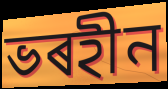
ভৰহীন